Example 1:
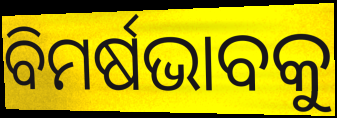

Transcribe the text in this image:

ବିମର୍ଷଭାବକୁ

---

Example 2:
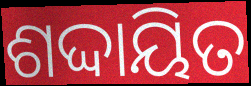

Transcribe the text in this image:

ଶଦ୍ଦାୟିତ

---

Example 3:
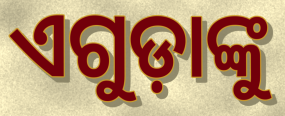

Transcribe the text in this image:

ଏଗୁଡ଼ାଙ୍କୁ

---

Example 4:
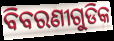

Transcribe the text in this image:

ବିବରଣୀଗୁଡିକ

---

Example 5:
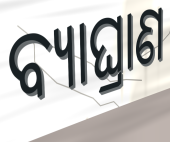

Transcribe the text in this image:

ବ୍ୟାଘ୍ରାଣ